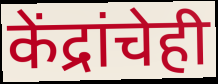
केंद्रांचेही